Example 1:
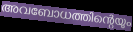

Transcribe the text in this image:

അവബോധത്തിന്റെയും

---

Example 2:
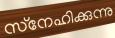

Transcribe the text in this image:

സ്‌നേഹിക്കുന്നു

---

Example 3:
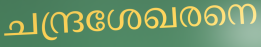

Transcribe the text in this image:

ചന്ദ്രശേഖരനെ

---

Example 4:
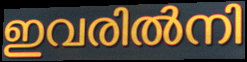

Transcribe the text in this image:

ഇവരിൽനി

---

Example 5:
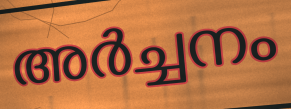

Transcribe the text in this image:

അർച്ചനം